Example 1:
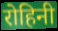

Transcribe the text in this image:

रोहिनी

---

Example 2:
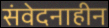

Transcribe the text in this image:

संवेदनाहीन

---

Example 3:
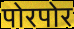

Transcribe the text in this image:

पोरपोर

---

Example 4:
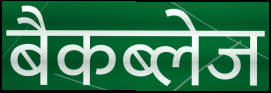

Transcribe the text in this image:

बैकब्लेज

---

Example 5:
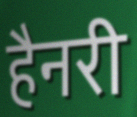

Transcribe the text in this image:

हैनरी